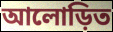
আলোড়িত